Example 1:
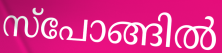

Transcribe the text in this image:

സ്പോങ്ങിൽ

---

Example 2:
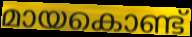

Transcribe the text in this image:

മായകൊണ്ട്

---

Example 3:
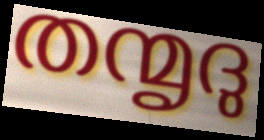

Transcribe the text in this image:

തന്മൃദു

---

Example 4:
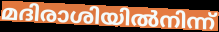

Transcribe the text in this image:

മദിരാശിയിൽനിന്ന്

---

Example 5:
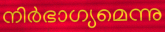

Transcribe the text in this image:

നിർഭാഗ്യമെന്നു